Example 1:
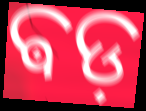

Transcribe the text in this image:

ଵଡ଼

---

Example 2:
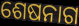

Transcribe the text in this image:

ଶେଷନାଗ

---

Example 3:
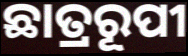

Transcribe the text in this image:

ଛାତ୍ରରୂପୀ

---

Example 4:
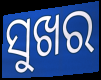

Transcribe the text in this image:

ସୁଖର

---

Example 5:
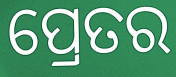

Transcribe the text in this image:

ପ୍ରେତର